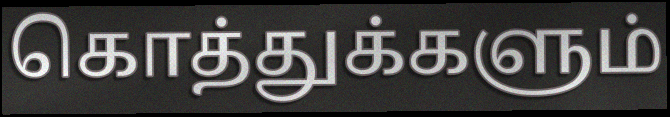
கொத்துக்களும்